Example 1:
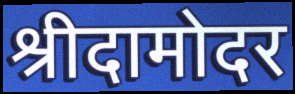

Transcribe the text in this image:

श्रीदामोदर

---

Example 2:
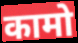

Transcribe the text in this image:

कामो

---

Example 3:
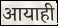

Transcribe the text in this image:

आयाही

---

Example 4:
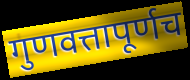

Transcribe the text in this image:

गुणवत्तापूर्णच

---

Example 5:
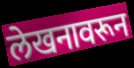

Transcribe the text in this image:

लेखनावरून